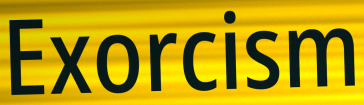
Exorcism